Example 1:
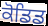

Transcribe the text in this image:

ਕੋਡਿਡ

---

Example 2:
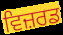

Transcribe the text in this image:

ਵਿਜ਼ਰਡ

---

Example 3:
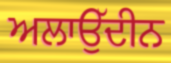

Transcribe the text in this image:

ਅਲਾਉੱਦੀਨ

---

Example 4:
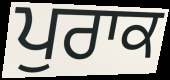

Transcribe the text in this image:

ਪੁਰਾਕ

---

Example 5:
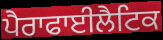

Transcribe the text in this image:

ਪੈਰਾਫਾਈਲੈਟਿਕ